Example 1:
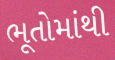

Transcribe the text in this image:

ભૂતોમાંથી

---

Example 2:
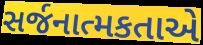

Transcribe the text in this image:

સર્જનાત્મકતાએ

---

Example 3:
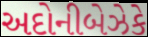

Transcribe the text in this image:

અદોનીબેઝેકે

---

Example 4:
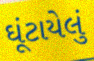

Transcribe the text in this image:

ઘૂંટાયેલું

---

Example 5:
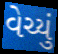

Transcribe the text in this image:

વેચ્યું